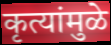
कृत्यांमुळे